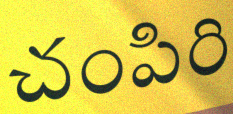
చంపిరి